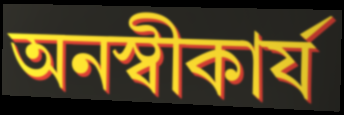
অনস্বীকার্য